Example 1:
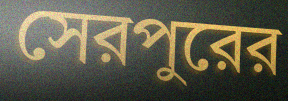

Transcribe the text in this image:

সেরপুরের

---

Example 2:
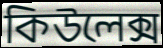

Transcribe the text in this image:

কিউলেক্স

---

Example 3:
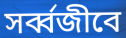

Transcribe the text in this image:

সর্ব্বজীবে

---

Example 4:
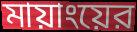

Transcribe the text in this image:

মায়াংয়ের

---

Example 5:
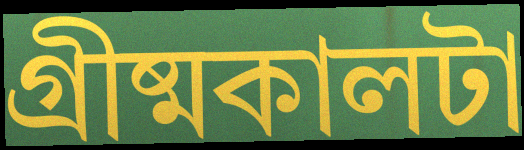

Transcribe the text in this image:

গ্রীষ্মকালটা